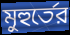
মুহুর্তের